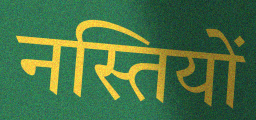
नस्तियों